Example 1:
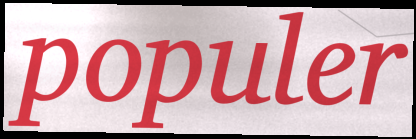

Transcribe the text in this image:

populer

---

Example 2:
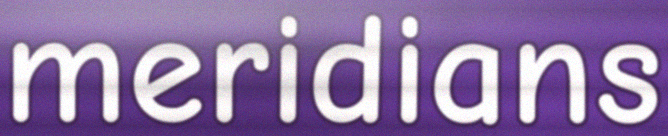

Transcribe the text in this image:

meridians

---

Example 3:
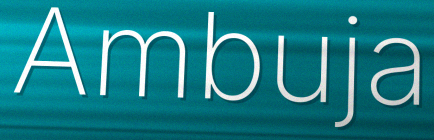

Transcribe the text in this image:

Ambuja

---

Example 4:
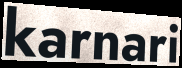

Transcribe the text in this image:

karnari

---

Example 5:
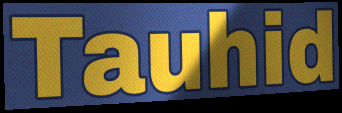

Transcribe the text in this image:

Tauhid